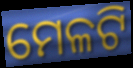
ମେଳଟି